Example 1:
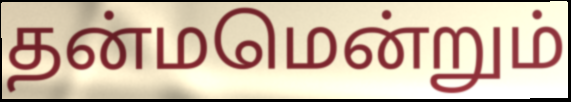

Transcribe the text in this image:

தன்மமென்றும்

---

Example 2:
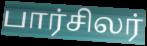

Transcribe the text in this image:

பார்சிலர்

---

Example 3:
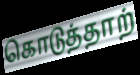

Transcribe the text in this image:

கொடுத்தாற்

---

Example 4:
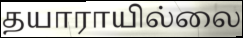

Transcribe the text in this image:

தயாராயில்லை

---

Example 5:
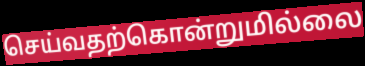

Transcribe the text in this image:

செய்வதற்கொன்றுமில்லை